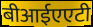
बीआईएएटी